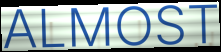
ALMOST